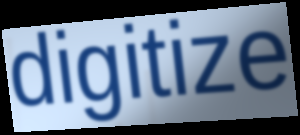
digitize